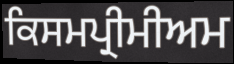
ਕਿਸਮਪ੍ਰੀਮੀਅਮ